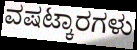
ವಷಟ್ಕಾರಗಳು